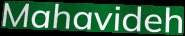
Mahavideh